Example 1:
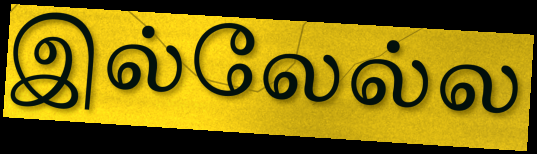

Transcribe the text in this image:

இல்லேல்ல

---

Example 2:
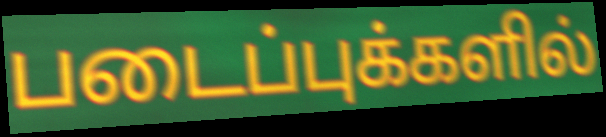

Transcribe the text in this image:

படைப்புக்களில்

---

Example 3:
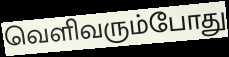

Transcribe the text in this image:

வெளிவரும்போது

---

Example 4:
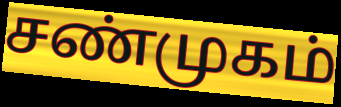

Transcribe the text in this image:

சண்முகம்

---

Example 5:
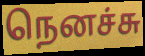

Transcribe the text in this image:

நெனச்சு